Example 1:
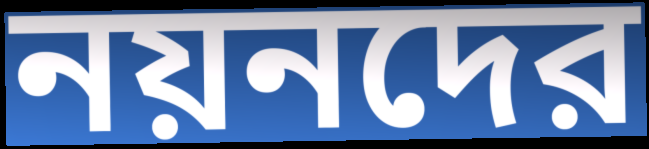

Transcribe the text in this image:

নয়নদের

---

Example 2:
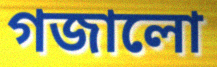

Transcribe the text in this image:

গজালো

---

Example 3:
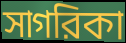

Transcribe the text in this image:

সাগরিকা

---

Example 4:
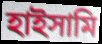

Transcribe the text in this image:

হাইসামি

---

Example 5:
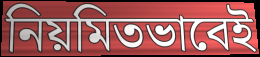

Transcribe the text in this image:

নিয়মিতভাবেই